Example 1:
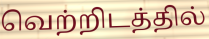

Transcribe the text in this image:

வெற்றிடத்தில்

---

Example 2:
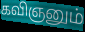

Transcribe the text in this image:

கவிஞனும்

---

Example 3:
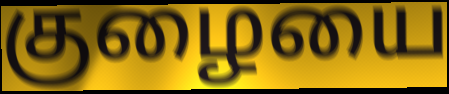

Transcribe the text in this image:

குழையை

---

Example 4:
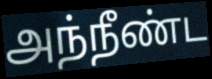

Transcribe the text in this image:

அந்நீண்ட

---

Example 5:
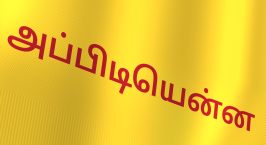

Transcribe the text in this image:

அப்பிடியென்ன